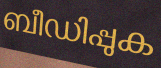
ബീഡിപ്പുക